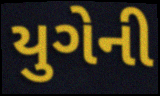
યુગેની